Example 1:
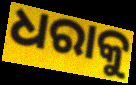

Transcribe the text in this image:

ଧରାକୁ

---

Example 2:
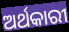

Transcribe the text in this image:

ଅର୍ଥକାରୀ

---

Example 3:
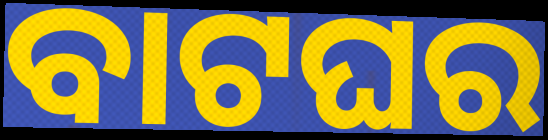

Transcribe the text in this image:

ବାଟଘର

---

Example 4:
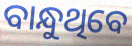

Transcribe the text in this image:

ବାନ୍ଧୁଥିବେ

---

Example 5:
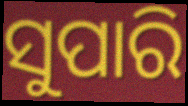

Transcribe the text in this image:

ସୁପାରି